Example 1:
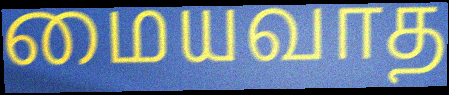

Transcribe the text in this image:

மையவாத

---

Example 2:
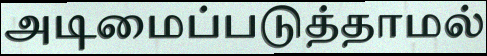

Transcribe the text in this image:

அடிமைப்படுத்தாமல்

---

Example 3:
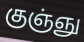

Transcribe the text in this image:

குஞ்ஞு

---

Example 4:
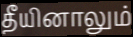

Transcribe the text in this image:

தீயினாலும்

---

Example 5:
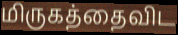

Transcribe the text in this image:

மிருகத்தைவிட